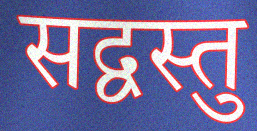
सद्वस्तु